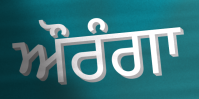
ਔਰੰਗਾ